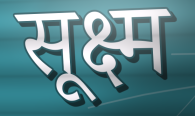
सूक्ष्म